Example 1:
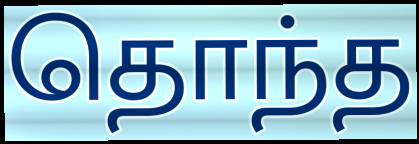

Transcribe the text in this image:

தொந்த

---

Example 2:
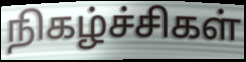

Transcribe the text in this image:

நிகழ்ச்சிகள்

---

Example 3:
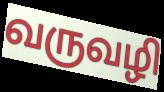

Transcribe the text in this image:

வருவழி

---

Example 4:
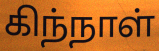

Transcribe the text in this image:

கிந்நாள்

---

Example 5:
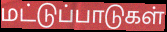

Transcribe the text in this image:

மட்டுப்பாடுகள்